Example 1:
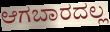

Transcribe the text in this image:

ಆಗಬಾರದಲ್ಲ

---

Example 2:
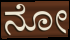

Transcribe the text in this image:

ನೋ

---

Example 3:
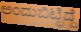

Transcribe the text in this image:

ಅಂದುಬಿಟ್ಟಿದ್ದೆ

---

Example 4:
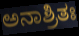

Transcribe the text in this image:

ಅನಾಶ್ರಿತಃ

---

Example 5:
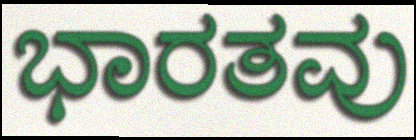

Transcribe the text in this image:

ಭಾರತವು